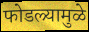
फोडल्यामुळे